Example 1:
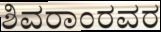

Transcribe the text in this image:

ಶಿವರಾಂರವರ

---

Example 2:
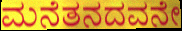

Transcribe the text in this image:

ಮನೆತನದವನೇ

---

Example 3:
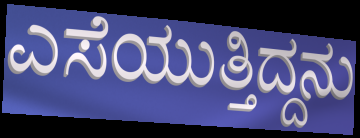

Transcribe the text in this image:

ಎಸೆಯುತ್ತಿದ್ದನು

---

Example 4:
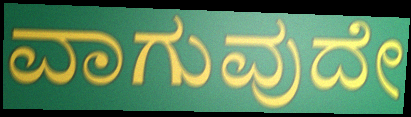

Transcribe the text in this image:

ವಾಗುವುದೇ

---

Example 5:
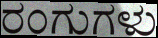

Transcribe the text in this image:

ರಂಗುಗಳು